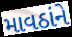
માવઠાંને